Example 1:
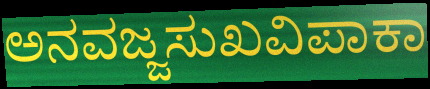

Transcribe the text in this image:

ಅನವಜ್ಜಸುಖವಿಪಾಕಾ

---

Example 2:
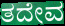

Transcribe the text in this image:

ತದೇವ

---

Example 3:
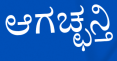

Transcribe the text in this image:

ಆಗಚ್ಛನ್ತಿ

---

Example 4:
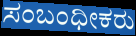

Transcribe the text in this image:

ಸಂಬಂಧೀಕರು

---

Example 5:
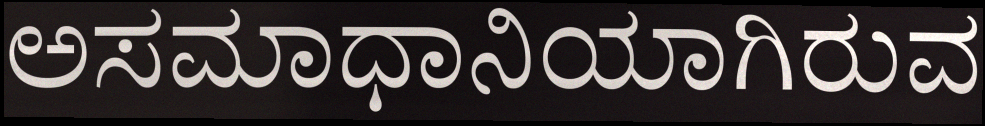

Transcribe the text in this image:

ಅಸಮಾಧಾನಿಯಾಗಿರುವ